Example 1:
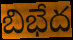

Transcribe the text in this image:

బిభేద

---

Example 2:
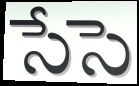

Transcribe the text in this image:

సేసె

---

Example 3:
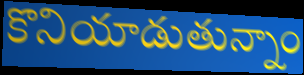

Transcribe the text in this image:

కొనియాడుతున్నాం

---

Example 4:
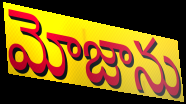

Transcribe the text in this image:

మోజాను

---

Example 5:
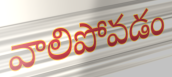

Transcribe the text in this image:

వాలిపోవడం